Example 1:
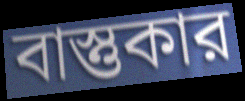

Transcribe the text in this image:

বাস্তুকার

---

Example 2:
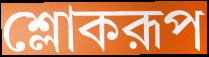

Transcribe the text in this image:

শ্লোকরূপ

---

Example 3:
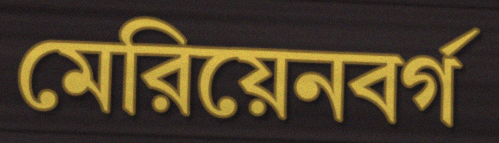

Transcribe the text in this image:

মেরিয়েনবর্গ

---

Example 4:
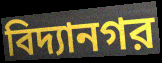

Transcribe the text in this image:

বিদ্যানগর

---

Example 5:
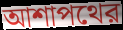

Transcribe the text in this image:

আশাপথের